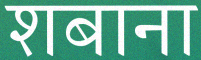
शबाना